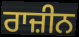
ਰਾਜ਼ੀਨ